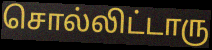
சொல்லிட்டாரு